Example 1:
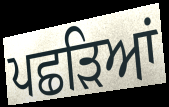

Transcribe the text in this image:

ਪਛੜਿਆਂ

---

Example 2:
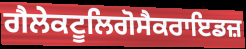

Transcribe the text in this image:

ਗੈਲੇਕਟੂਲਿਗੋਸੈਕਰਾਇਡਜ਼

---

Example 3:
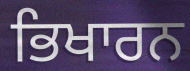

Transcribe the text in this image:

ਭਿਖਾਰਨ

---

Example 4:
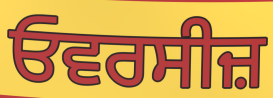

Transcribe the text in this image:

ਓਵਰਸੀਜ਼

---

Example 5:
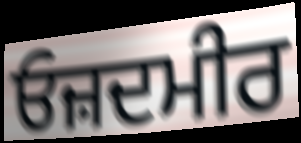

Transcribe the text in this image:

ਓਜ਼ਦਮੀਰ